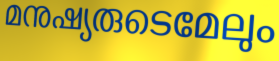
മനുഷ്യരുടെമേലും